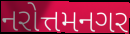
નરોત્તમનગર